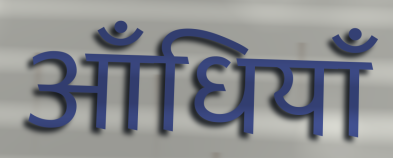
आँधियाँ